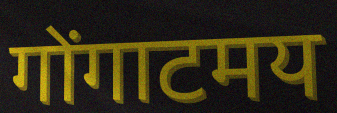
गोंगाटमय